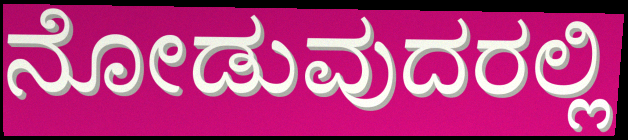
ನೋಡುವುದರಲ್ಲಿ